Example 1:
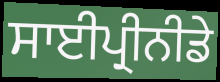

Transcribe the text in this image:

ਸਾਈਪ੍ਰੀਨੀਡੇ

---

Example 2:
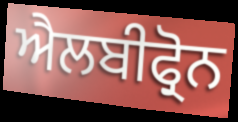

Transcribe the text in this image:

ਐਲਬੀਫ੍ਰੋਨ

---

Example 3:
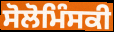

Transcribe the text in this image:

ਸੋਲੋਮਿੰਸਕੀ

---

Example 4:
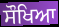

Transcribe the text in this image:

ਸੌਖਿਆ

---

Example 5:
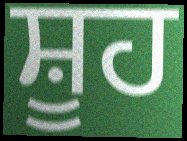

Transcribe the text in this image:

ਸ਼ੂਹ